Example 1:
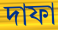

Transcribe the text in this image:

দাফা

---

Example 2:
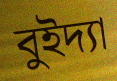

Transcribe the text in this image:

বুইদ্যা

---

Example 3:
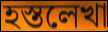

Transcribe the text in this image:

হস্তলেখা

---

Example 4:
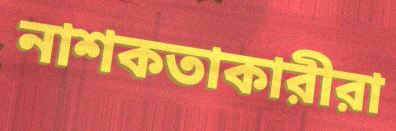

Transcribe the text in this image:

নাশকতাকারীরা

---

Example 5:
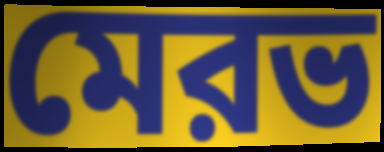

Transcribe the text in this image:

মেরভ